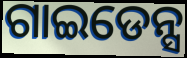
ଗାଇଡେନ୍ସ